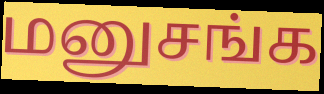
மனுசங்க